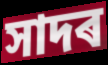
সাদৰ